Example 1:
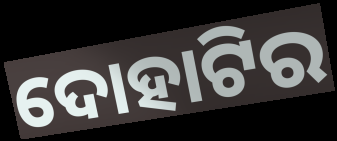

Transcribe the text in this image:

ଦୋହାଟିର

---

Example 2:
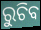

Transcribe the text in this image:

ରୁଚିବ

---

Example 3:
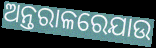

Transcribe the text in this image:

ଅନ୍ତରାଳରେଯାଉ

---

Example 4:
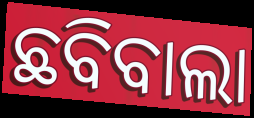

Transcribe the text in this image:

ଛବିବାଲା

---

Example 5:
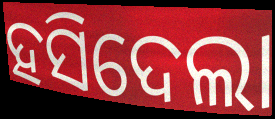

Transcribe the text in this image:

ହସିଦେଲା